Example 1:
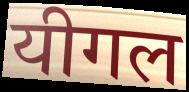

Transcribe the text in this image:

यीगल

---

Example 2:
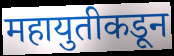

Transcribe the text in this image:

महायुतीकडून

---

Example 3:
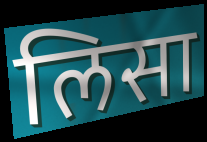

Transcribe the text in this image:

लिसा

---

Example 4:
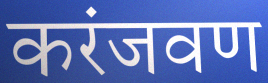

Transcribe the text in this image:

करंजवण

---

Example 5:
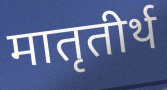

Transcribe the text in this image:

मातृतीर्थ